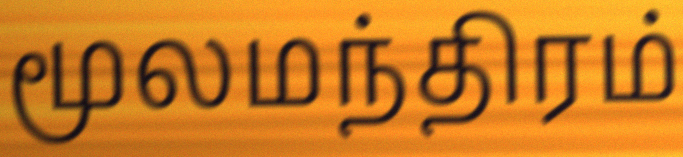
மூலமந்திரம்